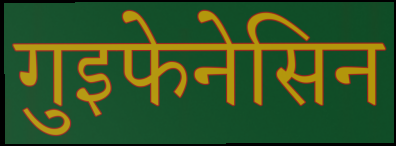
गुइफेनेसिन